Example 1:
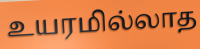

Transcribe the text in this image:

உயரமில்லாத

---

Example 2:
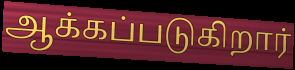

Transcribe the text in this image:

ஆக்கப்படுகிறார்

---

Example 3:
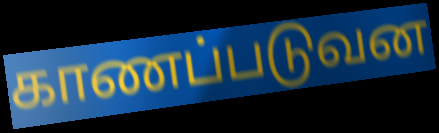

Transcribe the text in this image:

காணப்படுவன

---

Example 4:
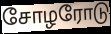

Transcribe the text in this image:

சோழரோடு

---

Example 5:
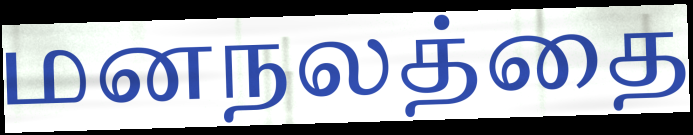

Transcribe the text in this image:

மனநலத்தை